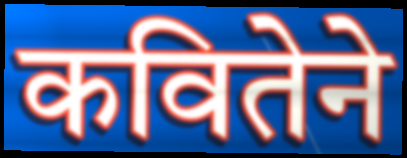
कवितेने